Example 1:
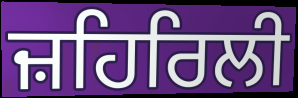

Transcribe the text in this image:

ਜ਼ਹਿਰਿਲੀ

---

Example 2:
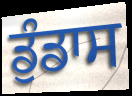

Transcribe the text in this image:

ਡੁੰਡਾਸ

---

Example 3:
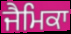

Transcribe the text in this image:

ਜੈਮਿਕਾ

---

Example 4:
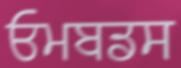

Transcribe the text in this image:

ਓਮਬਡਸ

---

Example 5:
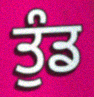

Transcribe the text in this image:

ਤੁੰਡ